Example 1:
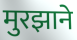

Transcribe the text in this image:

मुरझाने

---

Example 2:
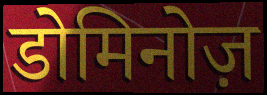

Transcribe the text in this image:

डोमिनोज़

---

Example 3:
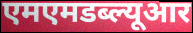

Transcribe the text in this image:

एमएमडब्ल्यूआर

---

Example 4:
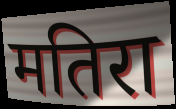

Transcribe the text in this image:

मतिरा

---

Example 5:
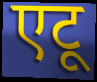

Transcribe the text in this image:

एटू